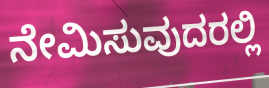
ನೇಮಿಸುವುದರಲ್ಲಿ